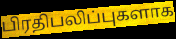
பிரதிபலிப்புகளாக